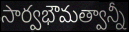
సార్వభౌమత్వాన్నీ